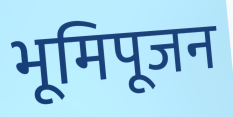
भूमिपूजन